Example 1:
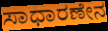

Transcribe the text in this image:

ಸಾಧಾರಣೇನ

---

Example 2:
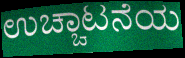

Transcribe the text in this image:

ಉಚ್ಚಾಟನೆಯ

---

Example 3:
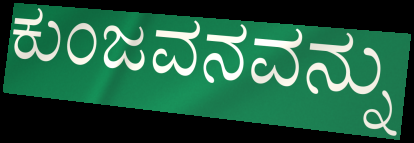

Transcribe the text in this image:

ಕುಂಜವನವನ್ನು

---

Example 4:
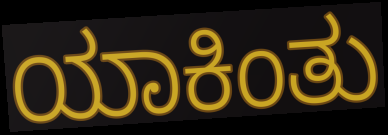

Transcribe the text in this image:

ಯಾಕಿಂತು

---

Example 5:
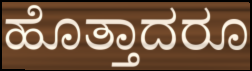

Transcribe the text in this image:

ಹೊತ್ತಾದರೂ